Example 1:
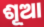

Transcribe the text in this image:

ଶୂଆ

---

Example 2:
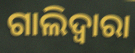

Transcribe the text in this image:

ଗାଲିଦ୍ଵାରା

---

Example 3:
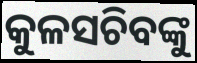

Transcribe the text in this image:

କୁଳସଚିବଙ୍କୁ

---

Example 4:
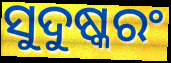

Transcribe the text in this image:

ସୁଦୁଷ୍କରଂ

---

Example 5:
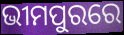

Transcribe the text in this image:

ଭୀମପୁରରେ